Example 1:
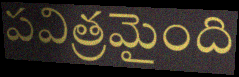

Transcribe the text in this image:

పవిత్రమైంది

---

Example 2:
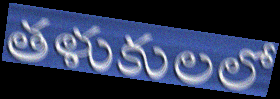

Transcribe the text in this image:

తళుకులలో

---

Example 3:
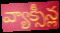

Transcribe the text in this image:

వ్యాక్సీన్ల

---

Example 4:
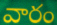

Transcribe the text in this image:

వారం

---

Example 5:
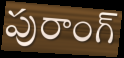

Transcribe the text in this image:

పురాంగ్